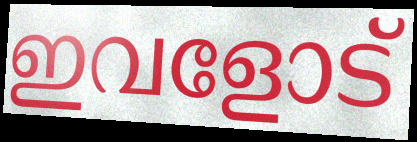
ഇവളോട്